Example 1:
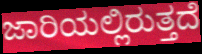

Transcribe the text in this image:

ಜಾರಿಯಲ್ಲಿರುತ್ತದೆ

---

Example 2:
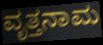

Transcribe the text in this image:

ವೃತ್ತನಾಮ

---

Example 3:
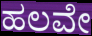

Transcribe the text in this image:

ಹಲವೇ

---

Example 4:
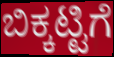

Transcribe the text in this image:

ಬಿಕ್ಕಟ್ಟಿಗೆ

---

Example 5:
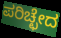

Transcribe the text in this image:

ಪರಿಚ್ಛೇದ